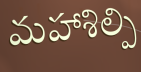
మహాశిల్పి